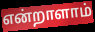
என்றாளாம்